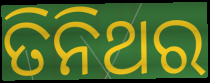
ତିନିଥର